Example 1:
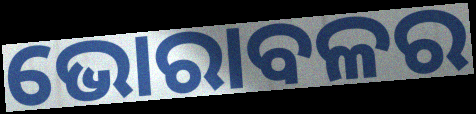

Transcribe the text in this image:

ଭୋରାବଳର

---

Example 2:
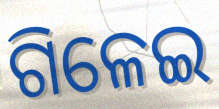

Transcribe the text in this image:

ଗିଳେଇ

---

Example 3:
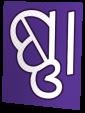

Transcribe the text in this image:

ଷ୍ଣା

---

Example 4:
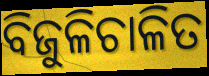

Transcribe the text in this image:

ବିଜୁଳିଚାଳିତ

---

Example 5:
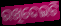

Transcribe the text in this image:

ରଖିଦେଇଚି